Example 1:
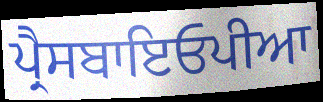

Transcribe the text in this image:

ਪ੍ਰੈਸਬਾਇਓਪੀਆ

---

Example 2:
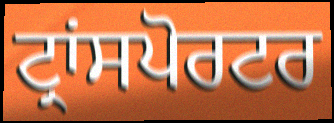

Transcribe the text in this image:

ਟ੍ਰਾਂਸਪੋਰਟਰ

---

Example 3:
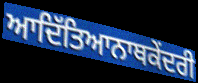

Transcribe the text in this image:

ਆਦਿੱਤਿਆਨਾਥਕੇਂਦਰੀ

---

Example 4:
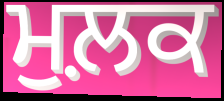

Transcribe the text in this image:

ਮੁਲ਼ਕ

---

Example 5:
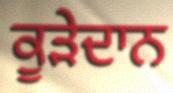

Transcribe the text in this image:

ਕੂੜੇਦਾਨ